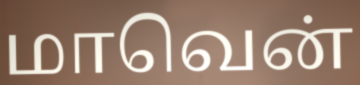
மாவென்